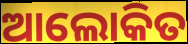
ଆଲୋକିତ